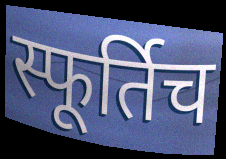
स्फूर्तिच